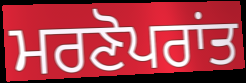
ਮਰਣੋਪਰਾਂਤ